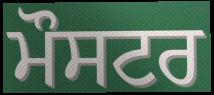
ਮੌਸਟਰ